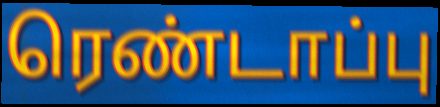
ரெண்டாப்பு